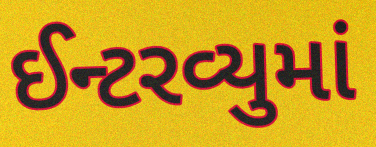
ઈન્ટરવ્યુમાં